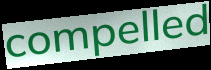
compelled